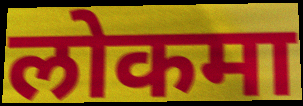
लोकमा